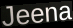
Jeena